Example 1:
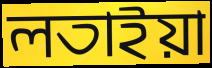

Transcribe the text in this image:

লতাইয়া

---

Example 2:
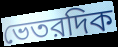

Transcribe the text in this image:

ভেতরদিক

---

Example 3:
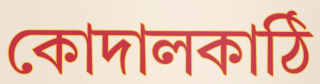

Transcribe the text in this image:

কোদালকাঠি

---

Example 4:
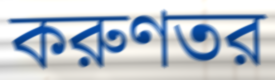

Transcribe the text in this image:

করুণতর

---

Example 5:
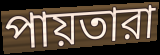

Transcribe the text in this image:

পায়তারা